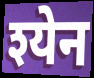
श्येन